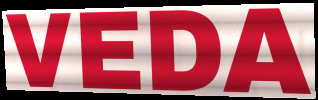
VEDA